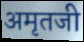
अमृतजी